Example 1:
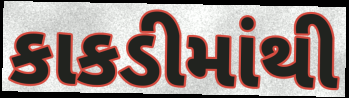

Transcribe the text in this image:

કાકડીમાંથી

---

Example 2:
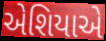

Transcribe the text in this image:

એશિયાએ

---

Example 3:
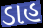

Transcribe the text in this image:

ડાહ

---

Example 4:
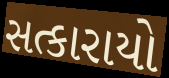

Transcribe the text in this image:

સત્કારાયો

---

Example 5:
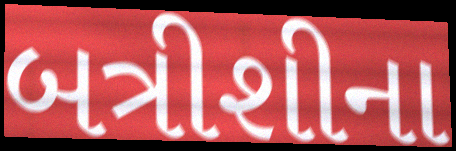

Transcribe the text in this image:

બત્રીશીના